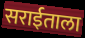
सराईताला